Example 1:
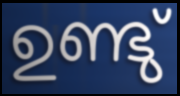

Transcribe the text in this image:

ഉണ്ടു്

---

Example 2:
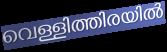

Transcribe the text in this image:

വെള്ളിത്തിരയിൽ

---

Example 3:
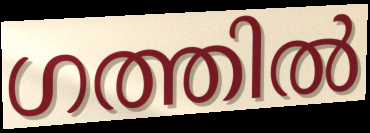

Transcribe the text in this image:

ഗത്തിൽ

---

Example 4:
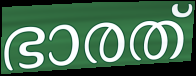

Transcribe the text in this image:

ഭാരത്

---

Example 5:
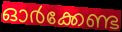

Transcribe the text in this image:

ഓർക്കേണ്ട